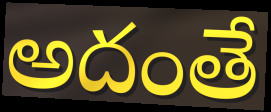
అదంతే